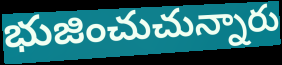
భుజించుచున్నారు